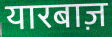
यारबाज़